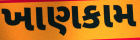
ખાણકામ